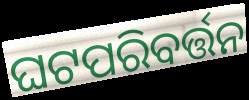
ଘଟପରିବର୍ତ୍ତନ